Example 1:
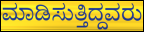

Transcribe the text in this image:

ಮಾಡಿಸುತ್ತಿದ್ದವರು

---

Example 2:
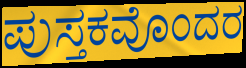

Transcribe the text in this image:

ಪುಸ್ತಕವೊಂದರ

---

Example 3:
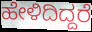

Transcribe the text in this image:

ಹೇಳಿದಿದ್ದರೆ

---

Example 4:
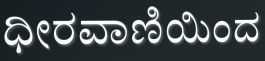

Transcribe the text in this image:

ಧೀರವಾಣಿಯಿಂದ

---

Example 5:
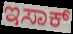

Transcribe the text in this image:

ಇಸಾಕ್